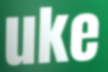
uke